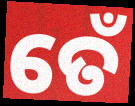
ତେଁ